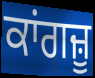
ਕਾਂਗਜ਼ੂ